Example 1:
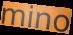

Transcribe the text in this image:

mino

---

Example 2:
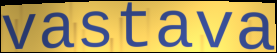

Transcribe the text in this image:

vastava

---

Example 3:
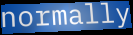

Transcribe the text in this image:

normally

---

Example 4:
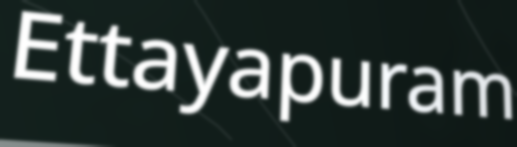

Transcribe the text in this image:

Ettayapuram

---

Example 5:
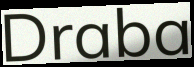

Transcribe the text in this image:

Draba